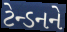
ટેન્ડનને